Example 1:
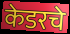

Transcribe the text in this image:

केडरचे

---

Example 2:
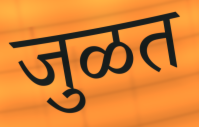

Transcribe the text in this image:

जुळत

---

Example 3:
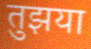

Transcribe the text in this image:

तुझया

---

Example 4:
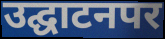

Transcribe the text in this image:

उद्घाटनपर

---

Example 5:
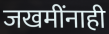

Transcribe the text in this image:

जखमींनाही